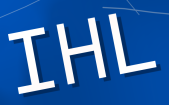
IHL